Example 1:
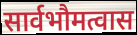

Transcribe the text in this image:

सार्वभौमत्वास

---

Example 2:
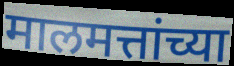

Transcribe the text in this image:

मालमत्तांच्या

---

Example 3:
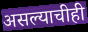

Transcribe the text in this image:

असल्याचीही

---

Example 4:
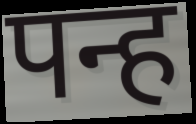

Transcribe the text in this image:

पन्ह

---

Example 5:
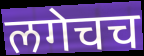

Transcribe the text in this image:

लगेचच